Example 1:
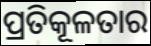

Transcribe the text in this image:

ପ୍ରତିକୂଳତାର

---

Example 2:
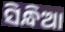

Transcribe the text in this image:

ସିନ୍ଧିଆ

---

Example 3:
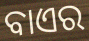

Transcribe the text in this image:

ବାଏର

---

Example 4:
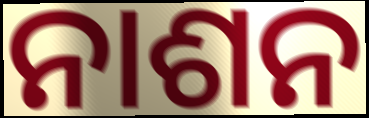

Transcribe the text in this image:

ନାଶନ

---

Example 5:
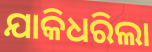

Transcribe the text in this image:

ଯାକିଧରିଲା